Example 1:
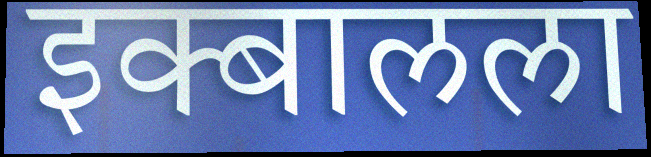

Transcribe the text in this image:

इक्बालला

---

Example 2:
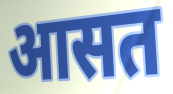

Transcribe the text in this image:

आसत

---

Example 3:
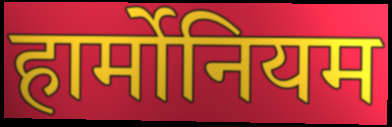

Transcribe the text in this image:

हार्मोनियम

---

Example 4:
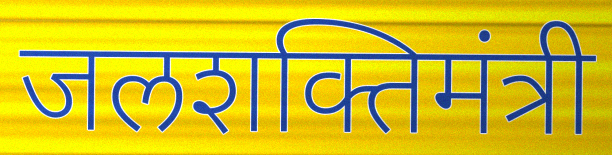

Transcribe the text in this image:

जलशक्तिमंत्री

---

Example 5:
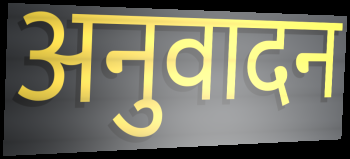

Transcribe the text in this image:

अनुवादन